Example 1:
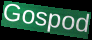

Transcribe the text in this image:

Gospod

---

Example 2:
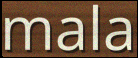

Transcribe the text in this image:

mala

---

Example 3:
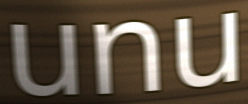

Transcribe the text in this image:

unu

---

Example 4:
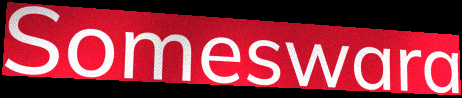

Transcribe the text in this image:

Someswara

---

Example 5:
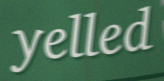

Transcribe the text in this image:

yelled